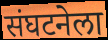
संघटनेला